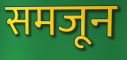
समजून